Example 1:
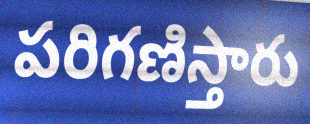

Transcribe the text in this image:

పరిగణిస్తారు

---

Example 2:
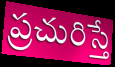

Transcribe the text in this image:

ప్రచురిస్తే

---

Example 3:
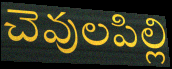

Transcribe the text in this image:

చెవులపిల్లి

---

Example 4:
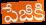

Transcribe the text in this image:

పేజీకి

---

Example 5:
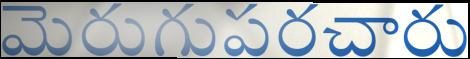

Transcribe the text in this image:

మెరుగుపరచారు